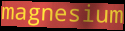
magnesium